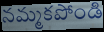
నమ్మకపోండి